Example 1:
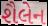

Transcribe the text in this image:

શૈલેન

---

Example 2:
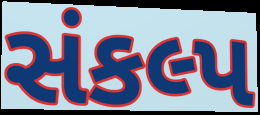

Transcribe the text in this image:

સંકલ્પ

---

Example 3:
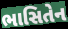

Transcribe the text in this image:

ભાસિતેન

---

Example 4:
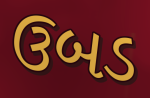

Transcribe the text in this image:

ઉબડ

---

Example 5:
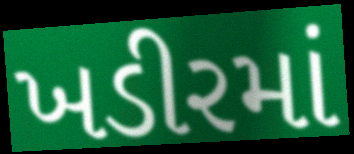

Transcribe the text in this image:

ખડીરમાં